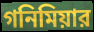
গনিমিয়ার